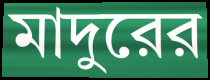
মাদুরের